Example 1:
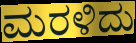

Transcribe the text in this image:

ಮರಳಿದು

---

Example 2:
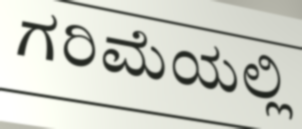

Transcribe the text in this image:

ಗರಿಮೆಯಲ್ಲಿ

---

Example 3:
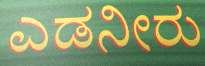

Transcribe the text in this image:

ಎಡನೀರು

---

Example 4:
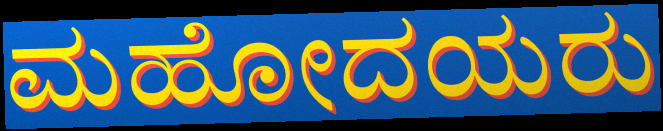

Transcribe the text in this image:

ಮಹೋದಯರು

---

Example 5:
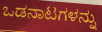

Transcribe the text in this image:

ಒಡನಾಟಗಳನ್ನು